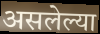
असलेल्या